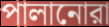
পালানোরা